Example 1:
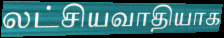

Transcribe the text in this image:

லட்சியவாதியாக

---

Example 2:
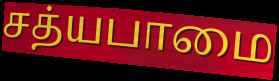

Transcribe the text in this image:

சத்யபாமை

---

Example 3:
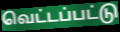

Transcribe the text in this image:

வெட்டப்பட்டு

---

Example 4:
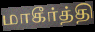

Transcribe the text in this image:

மாகீர்த்தி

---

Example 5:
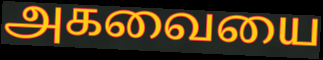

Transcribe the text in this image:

அகவையை